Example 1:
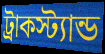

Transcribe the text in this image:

ট্রাকস্ট্যান্ড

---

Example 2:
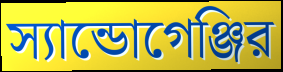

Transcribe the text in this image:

স্যান্ডোগেঞ্জির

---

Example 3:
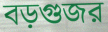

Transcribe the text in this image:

বড়গুজর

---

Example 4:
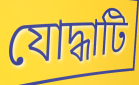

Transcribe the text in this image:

যোদ্ধাটি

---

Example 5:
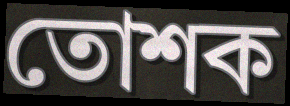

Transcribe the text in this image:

তোশক